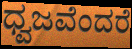
ಧ್ವಜವೆಂದರೆ